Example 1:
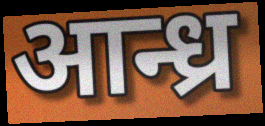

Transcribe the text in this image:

आन्ध्र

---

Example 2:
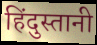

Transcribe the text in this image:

हिंदुस्तानी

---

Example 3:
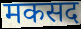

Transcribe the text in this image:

मकसद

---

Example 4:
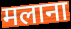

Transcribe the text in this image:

मलाना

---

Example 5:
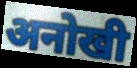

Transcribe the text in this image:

अनोखी